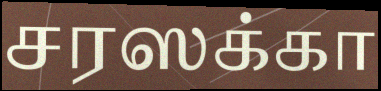
சரஸக்கா